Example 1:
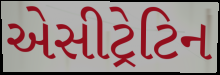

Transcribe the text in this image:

એસીટ્રેટિન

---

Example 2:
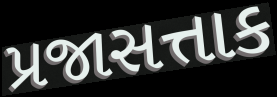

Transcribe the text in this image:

પ્રજાસત્તાક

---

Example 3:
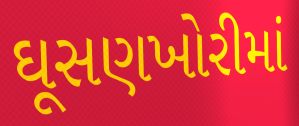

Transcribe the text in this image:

ઘૂસણખોરીમાં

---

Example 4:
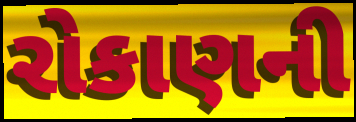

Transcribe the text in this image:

રોકાણની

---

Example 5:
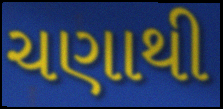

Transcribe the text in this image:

ચણાથી